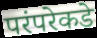
परंपरेकडे